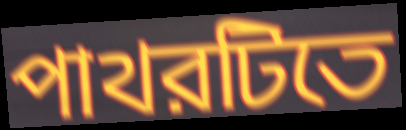
পাথরটিতে